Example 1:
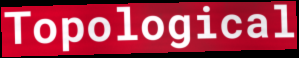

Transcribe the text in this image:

Topological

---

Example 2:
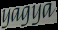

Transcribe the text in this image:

yagya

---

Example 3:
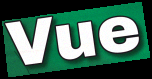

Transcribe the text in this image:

Vue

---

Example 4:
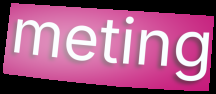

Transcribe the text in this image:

meting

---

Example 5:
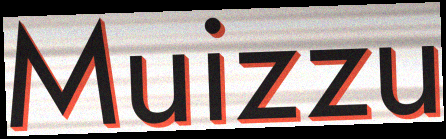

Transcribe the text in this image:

Muizzu